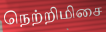
நெற்றிமிசை